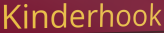
Kinderhook